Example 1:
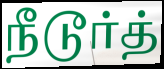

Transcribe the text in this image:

நீடூர்த்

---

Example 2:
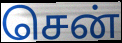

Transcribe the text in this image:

சென்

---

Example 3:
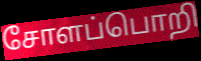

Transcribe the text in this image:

சோளப்பொறி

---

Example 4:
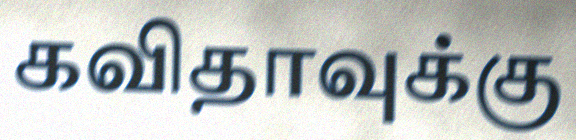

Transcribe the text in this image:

கவிதாவுக்கு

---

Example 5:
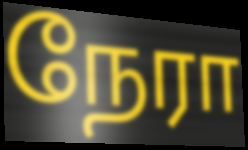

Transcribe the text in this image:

நேரா